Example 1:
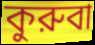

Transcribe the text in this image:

কুরুবা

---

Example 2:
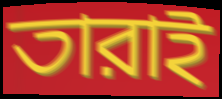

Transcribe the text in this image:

তারাই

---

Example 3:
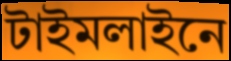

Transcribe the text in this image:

টাইমলাইনে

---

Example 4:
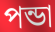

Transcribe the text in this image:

পন্ডা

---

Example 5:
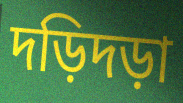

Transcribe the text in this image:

দড়িদড়া